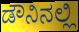
ಡೌನಿನಲ್ಲಿ